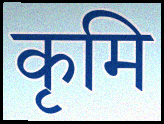
कृमि